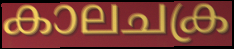
കാലചക്ര